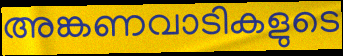
അങ്കണവാടികളുടെ